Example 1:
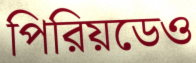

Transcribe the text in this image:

পিরিয়ডেও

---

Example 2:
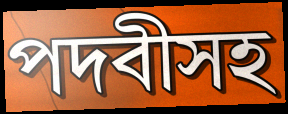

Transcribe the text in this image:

পদবীসহ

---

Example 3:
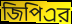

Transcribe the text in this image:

জিপিএর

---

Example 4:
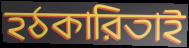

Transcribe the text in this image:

হঠকারিতাই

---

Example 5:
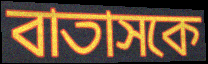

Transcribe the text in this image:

বাতাসকে